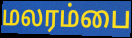
மலரம்பை